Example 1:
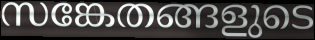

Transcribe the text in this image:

സങ്കേതങ്ങളുടെ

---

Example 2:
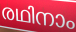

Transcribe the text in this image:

രഥിനാം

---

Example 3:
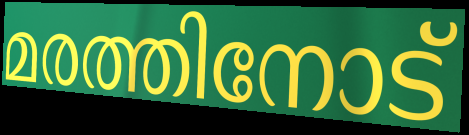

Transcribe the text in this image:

മരത്തിനോട്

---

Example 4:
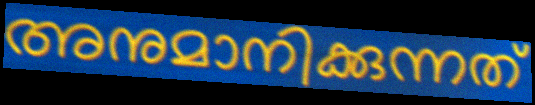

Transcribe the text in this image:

അനുമാനിക്കുന്നത്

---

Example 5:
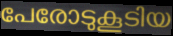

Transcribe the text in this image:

പേരോടുകൂടിയ